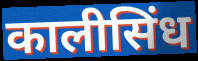
कालीसिंध